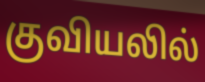
குவியலில்